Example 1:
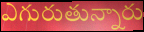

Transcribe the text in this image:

ఎగురుతున్నారు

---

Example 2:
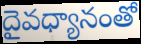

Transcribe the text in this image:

దైవధ్యానంతో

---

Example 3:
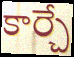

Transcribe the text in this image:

కార్చే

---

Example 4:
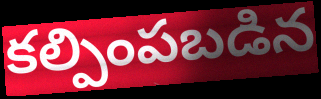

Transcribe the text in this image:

కల్పింపబడిన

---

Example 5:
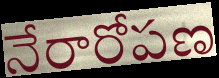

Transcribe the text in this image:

నేరారోపణ